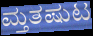
ಮ್ತತಷುಟ